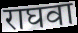
राघवा